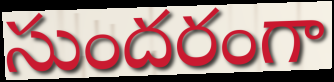
సుందరంగా